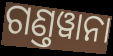
ଗଣ୍ତୱାନା